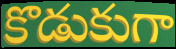
కొడుకుగా